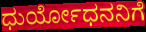
ಧುರ್ಯೋಧನನಿಗೆ